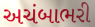
અચંબાભરી